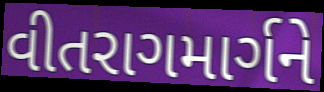
વીતરાગમાર્ગને